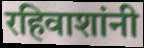
रहिवाशांनी